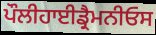
ਪੌਲੀਹਾਈਡ੍ਰੈਮਨੀਓਸ